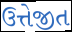
ઉત્તેજીત